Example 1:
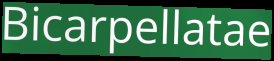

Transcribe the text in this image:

Bicarpellatae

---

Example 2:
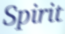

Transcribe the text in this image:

Spirit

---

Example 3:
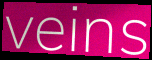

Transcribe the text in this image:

veins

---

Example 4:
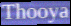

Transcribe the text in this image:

Thooya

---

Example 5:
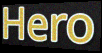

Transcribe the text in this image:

Hero